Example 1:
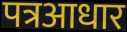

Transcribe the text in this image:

पत्रआधार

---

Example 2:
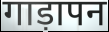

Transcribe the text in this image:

गाड़ापन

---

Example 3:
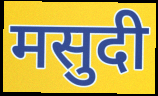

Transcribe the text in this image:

मसुदी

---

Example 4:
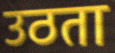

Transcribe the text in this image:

उठता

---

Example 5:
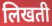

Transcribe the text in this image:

लिखती